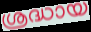
ശ്രദ്ധായ